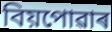
বিয়পোৱাৰ